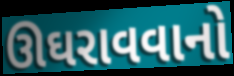
ઊઘરાવવાનો